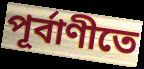
পূর্বাণীতে